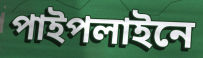
পাইপলাইনে